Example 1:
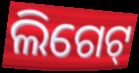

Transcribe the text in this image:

ଲିଗେଟ୍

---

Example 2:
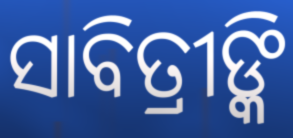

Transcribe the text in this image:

ସାବିତ୍ରୀଙ୍କି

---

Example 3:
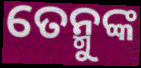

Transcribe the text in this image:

ତେନ୍ମୁଙ୍କ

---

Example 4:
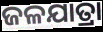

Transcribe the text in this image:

ଜଳଯାତ୍ରା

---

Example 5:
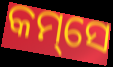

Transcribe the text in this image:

କମ୍‌ସେ